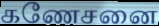
கணேசனை